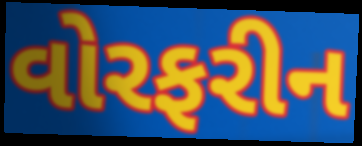
વોરફરીન